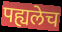
पह्यलेच